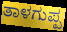
ತಾಳಗುಪ್ಪ